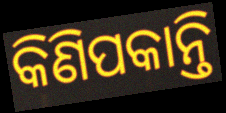
କିଣିପକାନ୍ତି